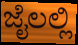
ಜೈಲಲ್ಲಿ